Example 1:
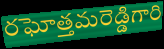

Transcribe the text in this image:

రఘోత్తమరెడ్డిగారి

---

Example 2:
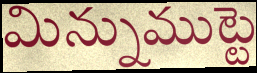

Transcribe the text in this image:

మిన్నుముట్టె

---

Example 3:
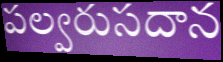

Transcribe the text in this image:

పల్వరుసదాన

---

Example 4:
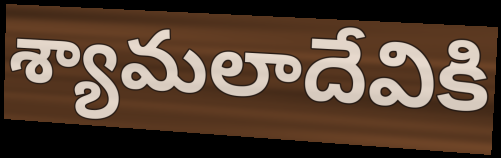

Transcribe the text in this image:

శ్యామలాదేవికి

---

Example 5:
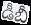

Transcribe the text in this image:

డీబీ